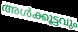
അൾക്കൂട്ടവും